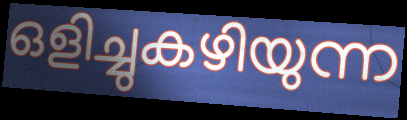
ഒളിച്ചുകഴിയുന്ന